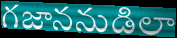
గజాననుడిలా